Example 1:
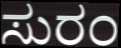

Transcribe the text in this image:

ಸುರಂ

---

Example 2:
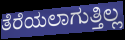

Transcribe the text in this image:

ತೆರೆಯಲಾಗುತ್ತಿಲ್ಲ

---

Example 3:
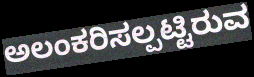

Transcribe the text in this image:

ಅಲಂಕರಿಸಲ್ಪಟ್ಟಿರುವ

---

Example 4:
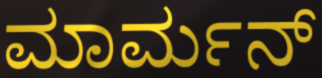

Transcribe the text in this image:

ಮಾರ್ಮನ್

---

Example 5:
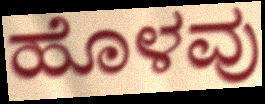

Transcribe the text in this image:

ಹೊಳವು